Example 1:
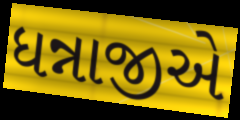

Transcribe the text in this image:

ધન્નાજીએ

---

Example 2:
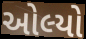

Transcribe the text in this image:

ઓલ્યો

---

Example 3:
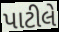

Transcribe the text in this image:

પાટીલે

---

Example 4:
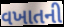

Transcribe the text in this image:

વખાતની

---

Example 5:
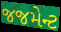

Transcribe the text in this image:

જજમેન્ટ